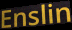
Enslin